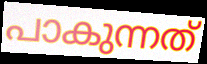
പാകുന്നത്